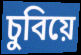
চুবিয়ে